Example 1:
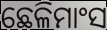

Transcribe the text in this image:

ଛେଳିମାଂସ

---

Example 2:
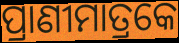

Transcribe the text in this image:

ପ୍ରାଣୀମାତ୍ରକେ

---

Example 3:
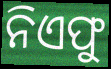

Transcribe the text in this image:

ନିଏଫୁ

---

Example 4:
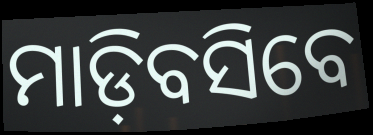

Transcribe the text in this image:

ମାଡ଼ିବସିବେ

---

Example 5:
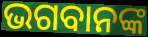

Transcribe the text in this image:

ଭଗବାନଙ୍କ